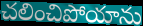
చలించిపోయాను